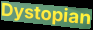
Dystopian